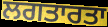
ਲਗਤਾਰਤਾ